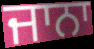
ਜਾਨਾ